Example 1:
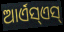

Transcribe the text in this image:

ଆର୍ଏସ୍ଏସ୍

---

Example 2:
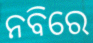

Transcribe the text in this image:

ନବିରେ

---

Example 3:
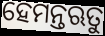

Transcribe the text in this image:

ହେମନ୍ତଋତୁ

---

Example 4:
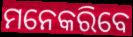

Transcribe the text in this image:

ମନେକରିବେ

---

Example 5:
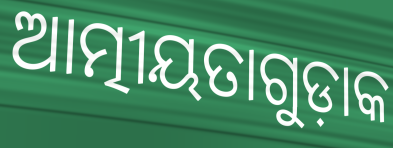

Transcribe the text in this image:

ଆତ୍ମୀୟତାଗୁଡ଼ାକ